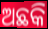
ଅଛକି